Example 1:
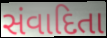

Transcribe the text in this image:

સંવાદિતા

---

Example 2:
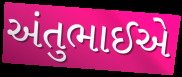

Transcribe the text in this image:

અંતુભાઈએ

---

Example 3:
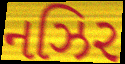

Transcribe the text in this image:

નઝિર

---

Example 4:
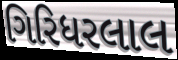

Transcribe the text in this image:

ગિરિધરલાલ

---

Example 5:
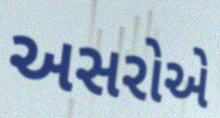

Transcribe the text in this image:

અસરોએ